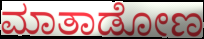
ಮಾತಾಡೋಣ